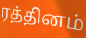
ரத்தினம்